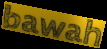
bawah